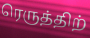
ரெருத்திற்